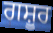
ਗਸ਼ੂਰ